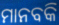
ମାନବକି